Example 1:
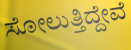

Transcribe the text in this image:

ಸೋಲುತ್ತಿದ್ದೇವೆ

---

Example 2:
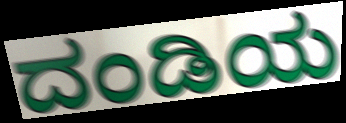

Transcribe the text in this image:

ದಂಡಿಯ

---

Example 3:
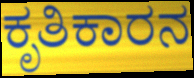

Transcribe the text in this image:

ಕೃತಿಕಾರನ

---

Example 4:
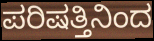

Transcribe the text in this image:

ಪರಿಷತ್ತಿನಿಂದ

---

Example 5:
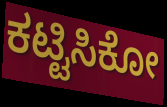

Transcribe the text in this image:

ಕಟ್ಟಿಸಿಕೋ